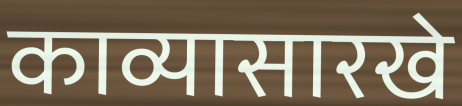
काव्यासारखे